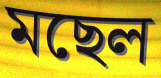
মছেল